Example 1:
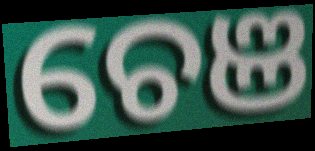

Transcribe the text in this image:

ଚେଞ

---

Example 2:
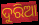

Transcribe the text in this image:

ଦୁରିଆ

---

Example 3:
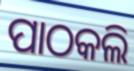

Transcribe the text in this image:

ପାଠକଲି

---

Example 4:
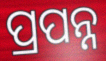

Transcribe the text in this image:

ପ୍ରପନ୍ନ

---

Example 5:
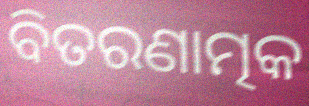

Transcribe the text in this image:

ବିତରଣାତ୍ମକ